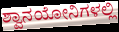
ಶ್ವಾನಯೋನಿಗಳಲ್ಲಿ